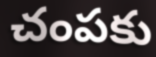
చంపకు